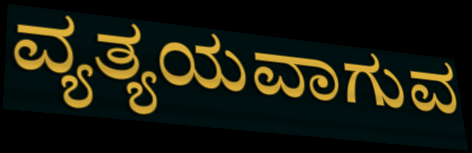
ವ್ಯತ್ಯಯವಾಗುವ